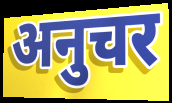
अनुचर